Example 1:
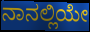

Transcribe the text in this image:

ನಾನಲ್ಲಿಯೇ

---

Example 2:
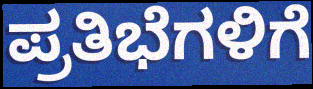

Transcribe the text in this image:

ಪ್ರತಿಭೆಗಳಿಗೆ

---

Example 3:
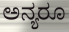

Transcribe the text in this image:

ಅನ್ಯರೂ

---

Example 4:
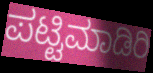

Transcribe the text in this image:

ಪಟ್ಟಿಮಾಡಿರಿ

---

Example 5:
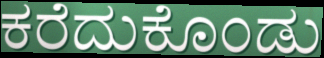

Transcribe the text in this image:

ಕರೆದುಕೊಂಡು